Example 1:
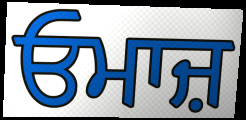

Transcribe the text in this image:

ਓਮਾਜ਼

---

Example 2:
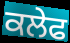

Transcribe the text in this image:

ਕਲੇਫ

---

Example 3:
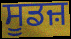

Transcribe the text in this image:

ਸੂਡਜ਼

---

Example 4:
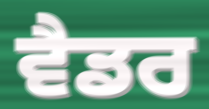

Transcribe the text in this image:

ਵੈਡਰ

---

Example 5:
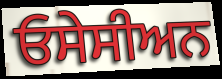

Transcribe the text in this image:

ਓਸੇਸੀਅਨ